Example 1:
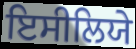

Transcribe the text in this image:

ਇਸੀਲਿਯੇ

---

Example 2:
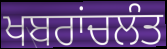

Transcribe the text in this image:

ਖਬਰਾਂਚਲੰਤ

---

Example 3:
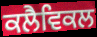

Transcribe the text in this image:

ਕਲੈਵਿਕਲ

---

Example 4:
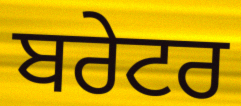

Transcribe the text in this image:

ਬਰੇਟਰ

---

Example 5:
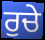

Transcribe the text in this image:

ਰੁਚੇ